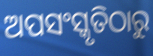
ଅପସଂସ୍କୃତିଠାରୁ